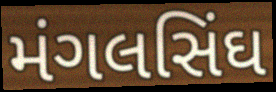
મંગલસિંઘ